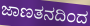
ಜಾಣತನದಿಂದ